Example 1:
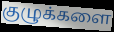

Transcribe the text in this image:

குழுக்களை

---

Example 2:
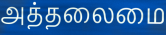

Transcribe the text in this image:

அத்தலைமை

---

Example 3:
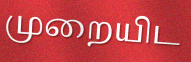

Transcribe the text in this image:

முறையிட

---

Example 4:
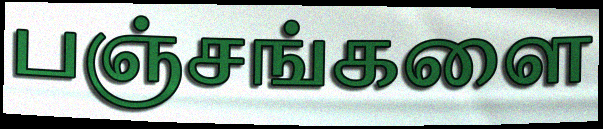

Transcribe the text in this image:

பஞ்சங்களை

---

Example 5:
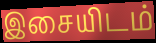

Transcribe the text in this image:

இசையிடம்